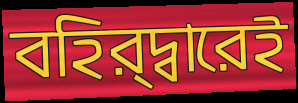
বহির্‌দ্বারেই